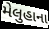
મેલુહાના